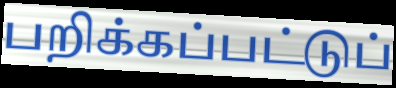
பறிக்கப்பட்டுப்